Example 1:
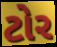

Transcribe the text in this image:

ટોર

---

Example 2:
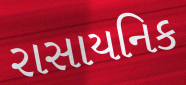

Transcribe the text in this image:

રાસાયનિક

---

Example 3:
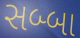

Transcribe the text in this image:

સબ્બા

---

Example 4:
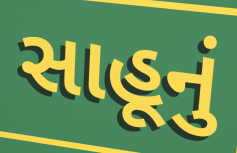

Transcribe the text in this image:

સાહૂનું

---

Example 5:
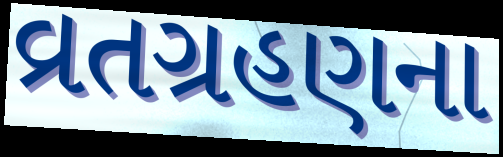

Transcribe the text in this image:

વ્રતગ્રહણના